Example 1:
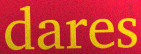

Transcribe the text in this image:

dares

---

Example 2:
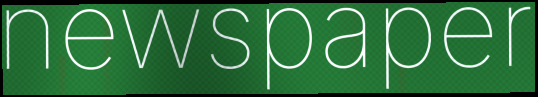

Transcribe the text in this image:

newspaper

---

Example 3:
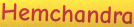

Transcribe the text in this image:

Hemchandra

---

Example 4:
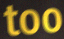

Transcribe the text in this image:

too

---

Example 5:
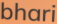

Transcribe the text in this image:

bhari